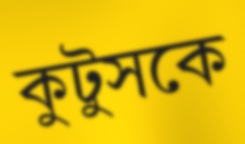
কুটুসকে